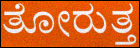
ತೋರುತ್ತ